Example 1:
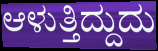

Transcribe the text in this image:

ಆಳುತ್ತಿದ್ದುದು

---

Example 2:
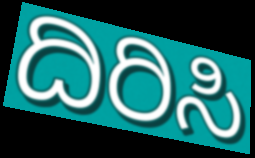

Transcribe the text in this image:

ದಿರಿಸಿ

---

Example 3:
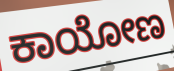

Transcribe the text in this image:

ಕಾಯೋಣ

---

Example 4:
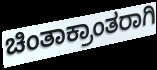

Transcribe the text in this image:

ಚಿಂತಾಕ್ರಾಂತರಾಗಿ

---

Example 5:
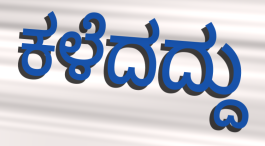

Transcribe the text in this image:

ಕಳೆದದ್ದು